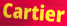
Cartier